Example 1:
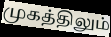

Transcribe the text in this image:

முகத்திலும்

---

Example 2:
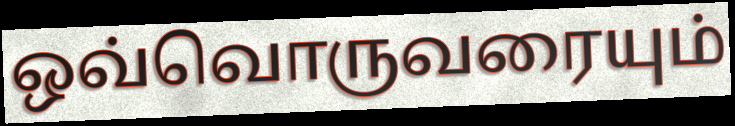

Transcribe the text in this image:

ஒவ்வொருவரையும்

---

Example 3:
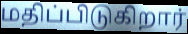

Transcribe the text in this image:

மதிப்பிடுகிறார்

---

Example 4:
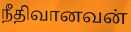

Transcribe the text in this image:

நீதிவானவன்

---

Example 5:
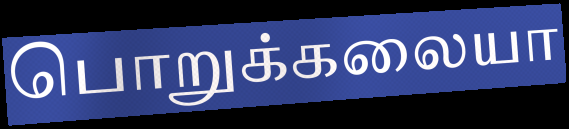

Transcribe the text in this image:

பொறுக்கலையா